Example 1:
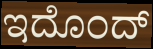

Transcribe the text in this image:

ಇದೊಂದ್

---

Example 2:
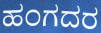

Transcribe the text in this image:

ಹಂಗದರ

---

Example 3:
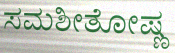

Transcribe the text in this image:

ಸಮಶೀತೋಷ್ಣ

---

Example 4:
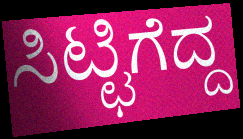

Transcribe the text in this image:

ಸಿಟ್ಟಿಗೆದ್ದ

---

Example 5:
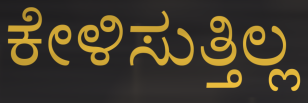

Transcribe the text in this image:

ಕೇಳಿಸುತ್ತಿಲ್ಲ